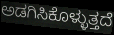
ಅಡಗಿಸಿಕೊಳ್ಳುತ್ತದೆ